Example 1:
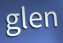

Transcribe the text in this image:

glen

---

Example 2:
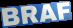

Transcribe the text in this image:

BRAF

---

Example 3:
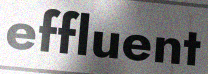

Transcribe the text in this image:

effluent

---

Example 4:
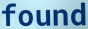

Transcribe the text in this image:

found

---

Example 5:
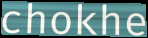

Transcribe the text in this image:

chokhe